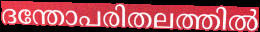
ദന്തോപരിതലത്തിൽ